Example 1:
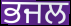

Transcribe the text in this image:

ਭਜਲ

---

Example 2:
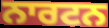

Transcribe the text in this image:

ਨਾਰਟਨ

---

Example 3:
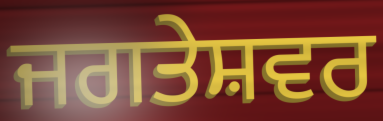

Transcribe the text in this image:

ਜਗਤੇਸ਼ਵਰ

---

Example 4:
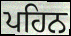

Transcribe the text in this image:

ਪਹਿਨ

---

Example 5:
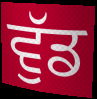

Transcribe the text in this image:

ਵੁੱਡ